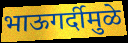
भाऊगर्दीमुळे